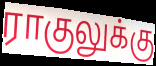
ராகுலுக்கு